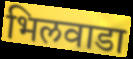
भिलवाडा